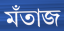
মঁতাজ